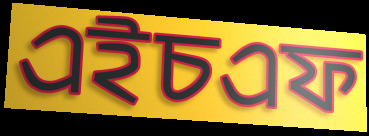
এইচএফ